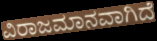
ವಿರಾಜಮಾನವಾಗಿದೆ